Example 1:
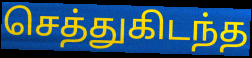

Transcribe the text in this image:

செத்துகிடந்த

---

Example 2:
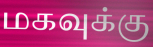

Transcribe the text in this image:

மகவுக்கு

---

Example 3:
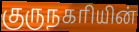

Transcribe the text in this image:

குருநகரியின்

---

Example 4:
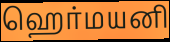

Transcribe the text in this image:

ஹெர்மயனி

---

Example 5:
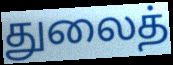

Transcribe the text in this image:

துலைத்